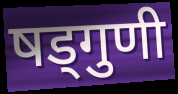
षड्गुणी